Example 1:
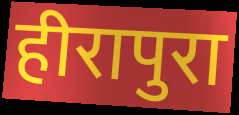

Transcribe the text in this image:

हीरापुरा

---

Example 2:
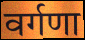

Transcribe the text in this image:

वर्गणा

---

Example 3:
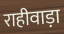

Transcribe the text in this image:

राहीवाड़ा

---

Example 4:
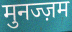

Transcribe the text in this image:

मुनज्ज़म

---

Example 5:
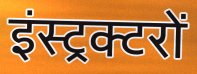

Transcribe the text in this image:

इंस्ट्रक्टरों